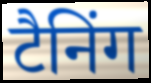
टैनिंग